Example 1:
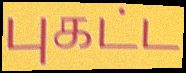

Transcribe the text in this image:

புகட்ட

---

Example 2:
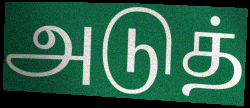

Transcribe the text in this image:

அடுத்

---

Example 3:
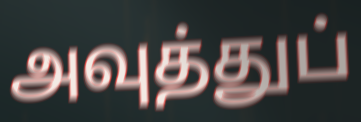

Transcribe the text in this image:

அவுத்துப்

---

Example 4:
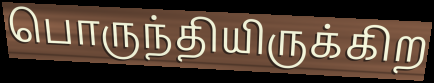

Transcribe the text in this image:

பொருந்தியிருக்கிற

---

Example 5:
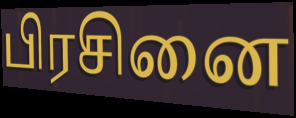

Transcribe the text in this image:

பிரசினை